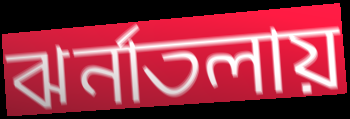
ঝর্নাতলায়